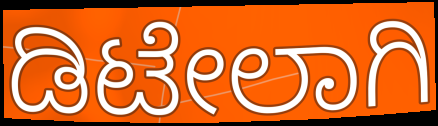
ಡಿಟೇಲಾಗಿ